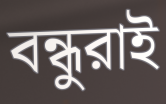
বন্ধুরাই